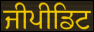
ਜੀਪੀਡਿਟ